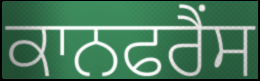
ਕਾਨਫਰੈਂਸ